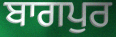
ਬਾਗਪੁਰ